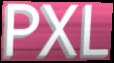
PXL